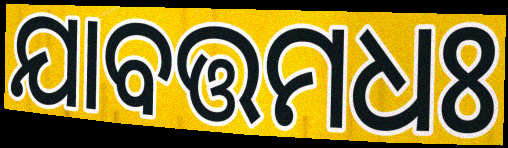
ଯାବତ୍ତମଧଃ